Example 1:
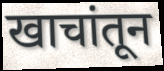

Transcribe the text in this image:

खाचांतून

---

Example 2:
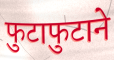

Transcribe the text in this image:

फुटाफुटाने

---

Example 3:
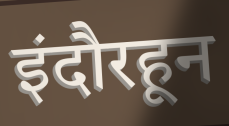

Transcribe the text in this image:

इंदौरहून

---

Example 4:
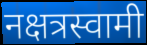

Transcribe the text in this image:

नक्षत्रस्वामी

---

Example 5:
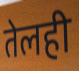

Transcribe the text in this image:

तेलही